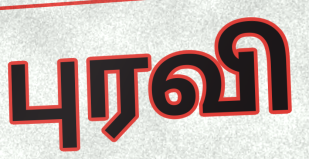
புரவி